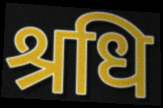
श्रधि